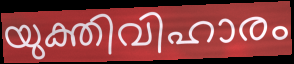
യുക്തിവിഹാരം